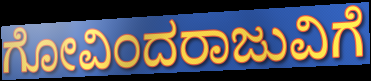
ಗೋವಿಂದರಾಜುವಿಗೆ